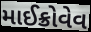
માઈક્રોવેવ